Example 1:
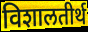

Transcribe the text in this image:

विशालतीर्थ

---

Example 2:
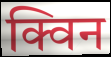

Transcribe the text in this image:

क्विन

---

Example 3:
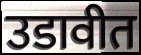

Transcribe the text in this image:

उडावीत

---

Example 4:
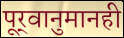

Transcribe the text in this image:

पूर्वानुमानही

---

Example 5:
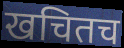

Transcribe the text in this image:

खचितच